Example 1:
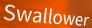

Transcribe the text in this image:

Swallower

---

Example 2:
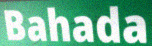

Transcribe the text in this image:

Bahada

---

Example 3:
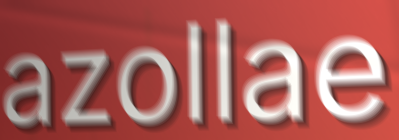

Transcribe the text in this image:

azollae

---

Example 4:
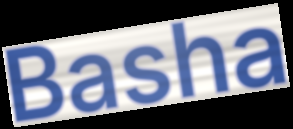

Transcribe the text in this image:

Basha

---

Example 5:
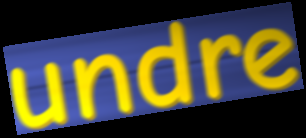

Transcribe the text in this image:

undre